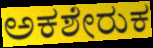
ಅಕಶೇರುಕ